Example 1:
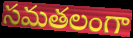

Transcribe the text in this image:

సమతలంగా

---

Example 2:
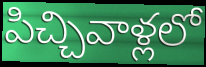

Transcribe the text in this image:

పిచ్చివాళ్లలో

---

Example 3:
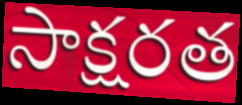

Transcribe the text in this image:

సాక్షరత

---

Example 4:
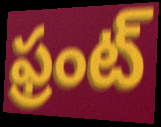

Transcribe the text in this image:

ఫ్రంట్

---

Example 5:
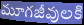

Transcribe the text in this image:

మూగజీవులకి